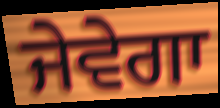
ਜੇਵੇਗਾ